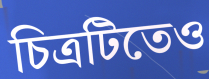
চিত্রটিতেও